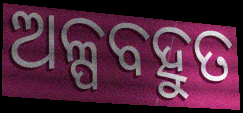
ଅଳ୍ପବହୁତ